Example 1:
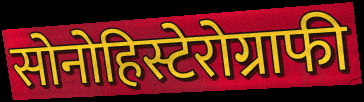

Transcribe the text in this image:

सोनोहिस्टेरोग्राफी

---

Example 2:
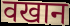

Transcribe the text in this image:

वखान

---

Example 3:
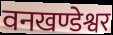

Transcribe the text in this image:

वनखण्डेश्वर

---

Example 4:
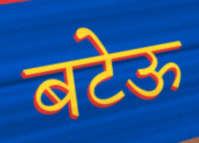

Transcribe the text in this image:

बटेऊ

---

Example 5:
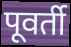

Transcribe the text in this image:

पूवर्ती